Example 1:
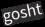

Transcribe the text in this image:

gosht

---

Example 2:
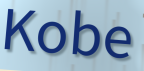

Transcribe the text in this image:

Kobe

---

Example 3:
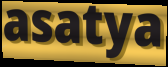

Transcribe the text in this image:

asatya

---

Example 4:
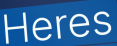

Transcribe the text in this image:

Heres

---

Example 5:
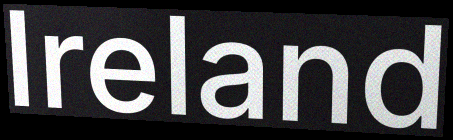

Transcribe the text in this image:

Ireland